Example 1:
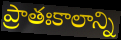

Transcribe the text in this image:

ప్రాతఃకాలాన్ని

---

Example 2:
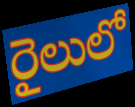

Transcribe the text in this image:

రైలులో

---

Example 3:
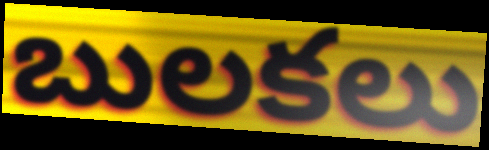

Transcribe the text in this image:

బులకలు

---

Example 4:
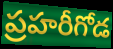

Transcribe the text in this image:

ప్రహరీగోడ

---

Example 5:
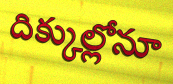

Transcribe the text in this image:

దిక్కుల్లోనూ